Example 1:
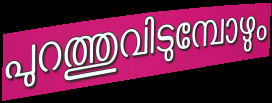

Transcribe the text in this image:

പുറത്തുവിടുമ്പോഴും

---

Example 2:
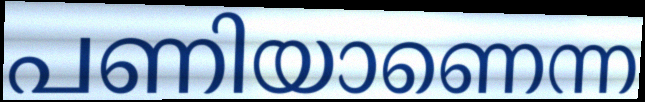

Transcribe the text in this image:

പണിയാണെന്ന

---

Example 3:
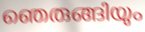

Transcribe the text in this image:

ഞെരുങ്ങിയും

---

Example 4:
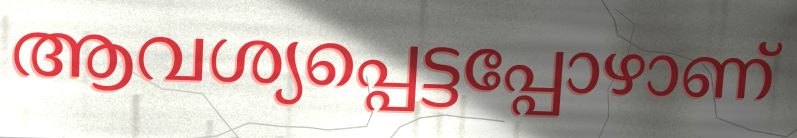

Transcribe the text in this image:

ആവശ്യപ്പെട്ടപ്പോഴാണ്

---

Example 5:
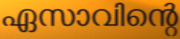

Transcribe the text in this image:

ഏസാവിന്റെ